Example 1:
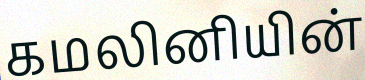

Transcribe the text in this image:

கமலினியின்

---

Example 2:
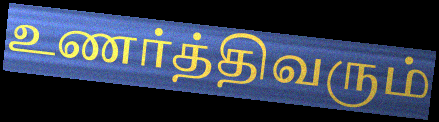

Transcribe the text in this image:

உணர்த்திவரும்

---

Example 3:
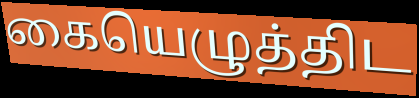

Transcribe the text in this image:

கையெழுத்திட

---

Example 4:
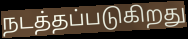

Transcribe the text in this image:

நடத்தப்படுகிறது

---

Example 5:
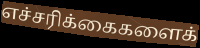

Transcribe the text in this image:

எச்சரிக்கைகளைக்